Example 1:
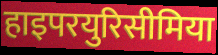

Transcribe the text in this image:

हाइपरयुरिसीमिया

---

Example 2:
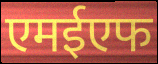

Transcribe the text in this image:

एमईएफ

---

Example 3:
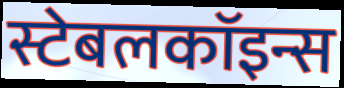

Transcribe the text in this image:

स्टेबलकॉइन्स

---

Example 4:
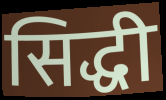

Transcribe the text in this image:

सिद्धी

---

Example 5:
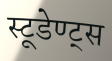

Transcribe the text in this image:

स्टूडेण्ट्स